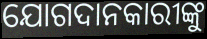
ଯୋଗଦାନକାରୀଙ୍କୁ